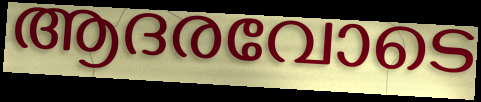
ആദരവോടെ